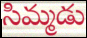
సిమ్మడు